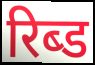
रिब्ड